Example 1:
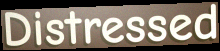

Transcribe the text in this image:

Distressed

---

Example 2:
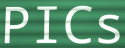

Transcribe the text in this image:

PICs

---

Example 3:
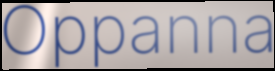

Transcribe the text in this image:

Oppanna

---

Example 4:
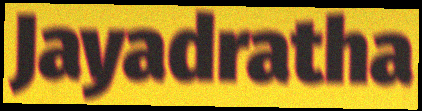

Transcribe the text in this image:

Jayadratha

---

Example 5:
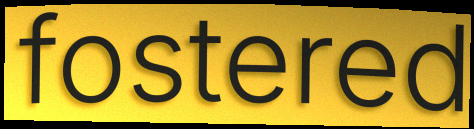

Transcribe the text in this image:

fostered